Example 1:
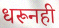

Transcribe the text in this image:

धरूनही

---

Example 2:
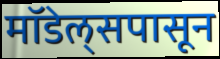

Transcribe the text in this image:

मॉडेल्सपासून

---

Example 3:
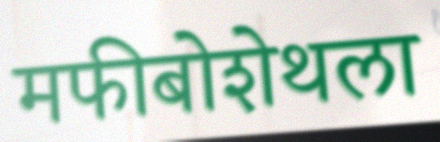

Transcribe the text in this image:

मफीबोशेथला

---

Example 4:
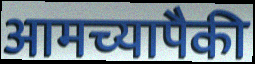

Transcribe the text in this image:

आमच्यापैकी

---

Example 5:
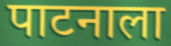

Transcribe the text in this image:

पाटनाला